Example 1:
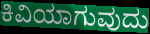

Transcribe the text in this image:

ಕಿವಿಯಾಗುವುದು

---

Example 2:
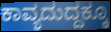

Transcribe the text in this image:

ಕಾವ್ಯದುದ್ದಕ್ಕೂ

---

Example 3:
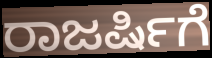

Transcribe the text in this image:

ರಾಜರ್ಷಿಗೆ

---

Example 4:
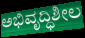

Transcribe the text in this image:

ಅಭಿವೃದ್ಧಿಶೀಲ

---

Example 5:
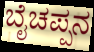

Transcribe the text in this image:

ಬೈಚಪ್ಪನ